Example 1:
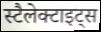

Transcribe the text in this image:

स्टैलेक्टाइट्स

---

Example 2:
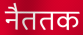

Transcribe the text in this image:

नैततक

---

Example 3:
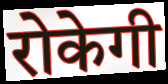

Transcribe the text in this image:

रोकेगी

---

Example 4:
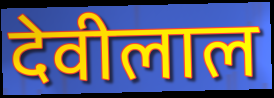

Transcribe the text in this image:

देवीलाल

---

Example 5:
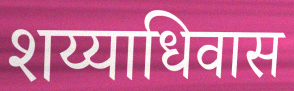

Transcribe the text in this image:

शय्याधिवास